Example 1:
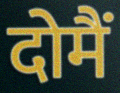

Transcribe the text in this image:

दोमैं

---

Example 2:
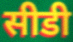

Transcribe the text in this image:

सीडी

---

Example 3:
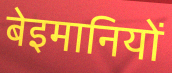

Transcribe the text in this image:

बेइमानियों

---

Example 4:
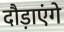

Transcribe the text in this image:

दौड़ाएंगे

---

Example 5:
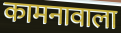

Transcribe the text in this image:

कामनावाला